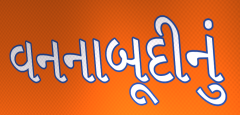
વનનાબૂદીનું